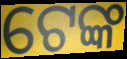
ଟେଙ୍କ